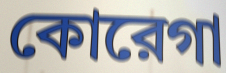
কোরেগা